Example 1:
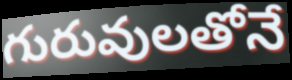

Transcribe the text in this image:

గురువులతోనే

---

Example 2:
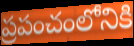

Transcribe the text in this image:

ప్రపంచంలోనికి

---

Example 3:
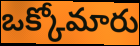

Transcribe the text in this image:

ఒక్కోమారు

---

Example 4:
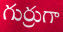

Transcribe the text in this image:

గుర్రుగా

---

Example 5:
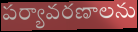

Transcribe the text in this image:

పర్యావరణాలను